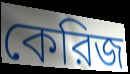
কেরিজ